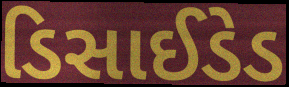
ડિસાઈડેડ